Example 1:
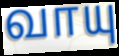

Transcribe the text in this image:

வாயு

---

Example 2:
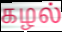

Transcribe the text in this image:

கழல்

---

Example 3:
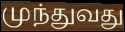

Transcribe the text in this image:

முந்துவது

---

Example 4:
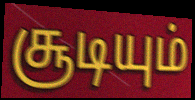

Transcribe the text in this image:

சூடியும்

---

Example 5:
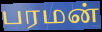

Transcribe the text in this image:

பரமன்